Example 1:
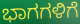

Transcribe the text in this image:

ಭಾಗಗಳಿಗೆ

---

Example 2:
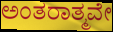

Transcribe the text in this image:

ಅಂತರಾತ್ಮವೇ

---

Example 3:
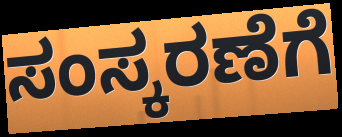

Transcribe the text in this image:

ಸಂಸ್ಕರಣೆಗೆ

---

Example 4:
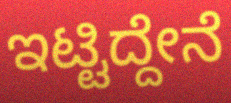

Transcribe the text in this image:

ಇಟ್ಟಿದ್ದೇನೆ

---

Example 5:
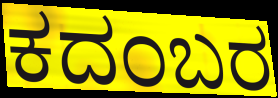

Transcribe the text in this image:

ಕದಂಬರ